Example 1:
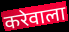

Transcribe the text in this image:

करेवाला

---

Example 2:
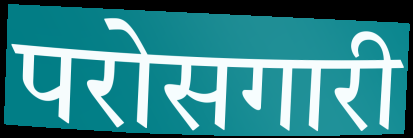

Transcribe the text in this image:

परोसगारी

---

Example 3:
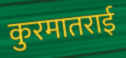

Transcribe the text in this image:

कुरमातराई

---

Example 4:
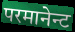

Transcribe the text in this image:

परमानेन्ट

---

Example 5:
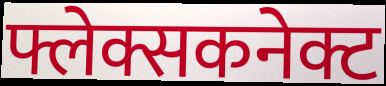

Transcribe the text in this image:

फ्लेक्सकनेक्ट